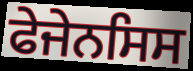
ਫੇਜੇਨਸਿਸ